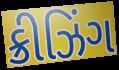
ક્રીઝિંગ